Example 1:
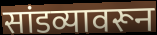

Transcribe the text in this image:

सांडव्यावरून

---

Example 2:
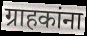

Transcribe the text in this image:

ग्राहकांना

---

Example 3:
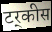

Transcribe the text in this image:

टर्कीस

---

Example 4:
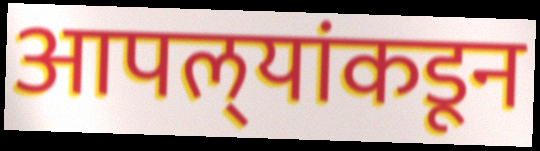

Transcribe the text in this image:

आपल्यांकडून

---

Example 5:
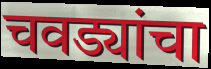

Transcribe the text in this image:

चवड्यांचा